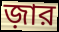
জ়ার